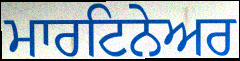
ਮਾਰਟਿਨੇਅਰ